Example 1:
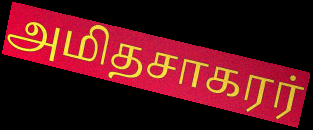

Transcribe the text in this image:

அமிதசாகரர்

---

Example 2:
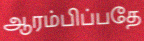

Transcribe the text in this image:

ஆரம்பிப்பதே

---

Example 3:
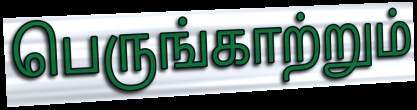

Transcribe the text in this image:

பெருங்காற்றும்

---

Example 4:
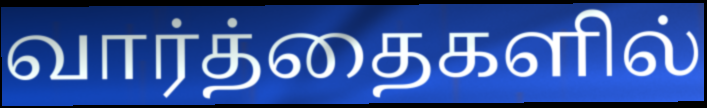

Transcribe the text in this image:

வார்த்தைகளில்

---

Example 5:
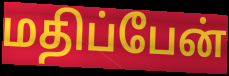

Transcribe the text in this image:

மதிப்பேன்